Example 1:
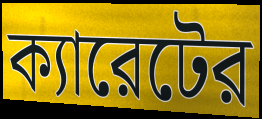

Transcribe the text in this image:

ক্যারেটের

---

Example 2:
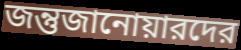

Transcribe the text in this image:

জন্তুজানোয়ারদের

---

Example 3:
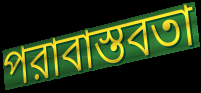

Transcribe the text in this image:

পরাবাস্তবতা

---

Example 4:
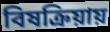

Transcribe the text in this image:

বিষক্রিয়ায়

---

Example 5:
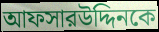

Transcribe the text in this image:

আফসারউদ্দিনকে